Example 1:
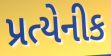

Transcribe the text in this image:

પ્રત્યેનીક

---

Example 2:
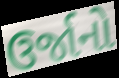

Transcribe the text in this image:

ઉર્જાનો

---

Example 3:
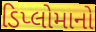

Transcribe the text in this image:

ડિપ્લોમાનો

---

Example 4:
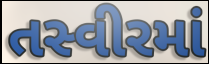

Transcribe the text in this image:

તસ્વીરમાં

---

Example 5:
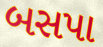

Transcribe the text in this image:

બસપા